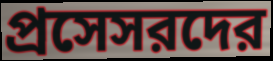
প্রসেসরদের